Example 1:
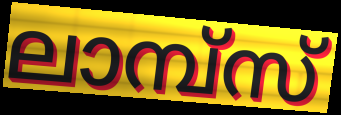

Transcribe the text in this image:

ലാമ്പ്സ്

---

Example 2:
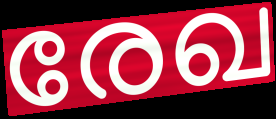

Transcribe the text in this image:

രേഖ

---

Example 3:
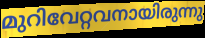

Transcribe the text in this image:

മുറിവേറ്റവനായിരുന്നു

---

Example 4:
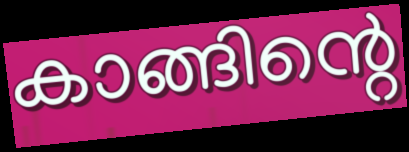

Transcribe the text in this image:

കാങ്ങിന്റെ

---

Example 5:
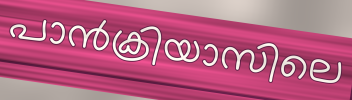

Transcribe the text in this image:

പാൻക്രിയാസിലെ